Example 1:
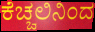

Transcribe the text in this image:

ಕೆಚ್ಚಲಿನಿಂದ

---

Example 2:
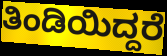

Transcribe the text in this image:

ತಿಂಡಿಯಿದ್ದರೆ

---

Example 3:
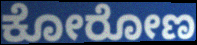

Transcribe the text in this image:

ಕೋರೋಣ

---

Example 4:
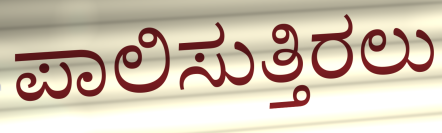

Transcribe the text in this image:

ಪಾಲಿಸುತ್ತಿರಲು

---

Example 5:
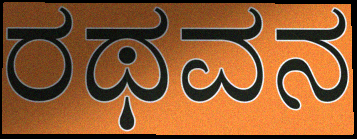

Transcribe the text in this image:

ರಥವನ